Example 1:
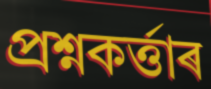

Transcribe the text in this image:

প্ৰশ্নকৰ্ত্তাৰ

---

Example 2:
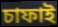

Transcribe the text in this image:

চাফাই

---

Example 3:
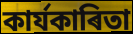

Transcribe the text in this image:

কাৰ্যকাৰিতা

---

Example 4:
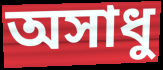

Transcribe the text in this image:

অসাধু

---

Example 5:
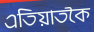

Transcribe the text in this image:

এতিয়াতকৈ